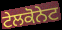
ਟੇਲਕੋਨੇਟ